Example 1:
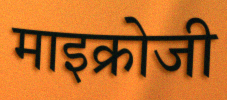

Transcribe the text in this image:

माइक्रोजी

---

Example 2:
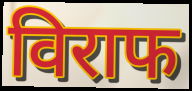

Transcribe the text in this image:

विराफ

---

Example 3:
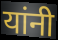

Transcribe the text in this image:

यांनी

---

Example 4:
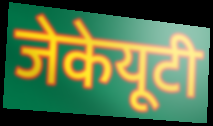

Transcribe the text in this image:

जेकेयूटी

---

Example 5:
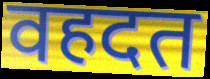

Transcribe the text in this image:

वहदत